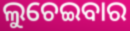
ଲୁଚେଇବାର